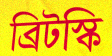
ব্রিটস্কি